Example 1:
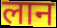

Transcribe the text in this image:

लान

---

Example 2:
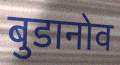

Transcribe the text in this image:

बुडानोव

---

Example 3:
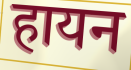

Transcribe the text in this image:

हायन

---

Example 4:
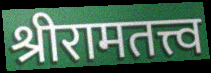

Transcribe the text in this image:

श्रीरामतत्त्व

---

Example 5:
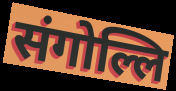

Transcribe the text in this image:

संगोल्लि